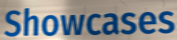
Showcases